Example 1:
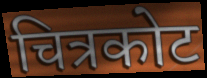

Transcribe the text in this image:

चित्रकोट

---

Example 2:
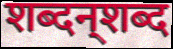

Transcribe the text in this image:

शब्दन्‌शब्द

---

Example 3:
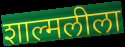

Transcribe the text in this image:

शाल्मलीला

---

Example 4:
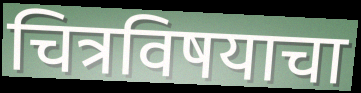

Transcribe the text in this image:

चित्रविषयाचा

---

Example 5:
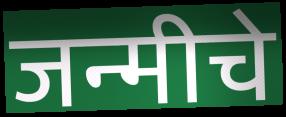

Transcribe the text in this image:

जन्मीचे